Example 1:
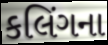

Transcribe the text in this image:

કલિંગના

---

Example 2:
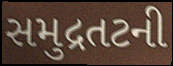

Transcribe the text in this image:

સમુદ્રતટની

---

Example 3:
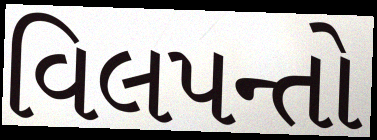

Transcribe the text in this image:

વિલપન્તો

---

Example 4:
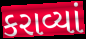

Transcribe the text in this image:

કરાવ્યાં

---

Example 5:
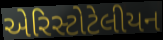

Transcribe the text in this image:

એરિસ્ટોટેલીયન